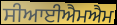
ਸੀਆਈਐਮਐਮ